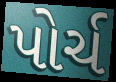
પોર્ચ